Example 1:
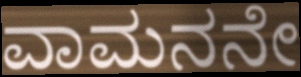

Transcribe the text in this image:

ವಾಮನನೇ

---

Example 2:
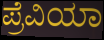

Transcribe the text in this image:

ಪ್ರೆವಿಯಾ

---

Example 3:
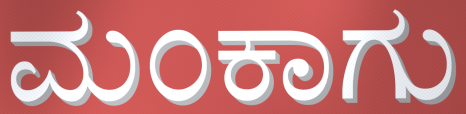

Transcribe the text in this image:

ಮಂಕಾಗು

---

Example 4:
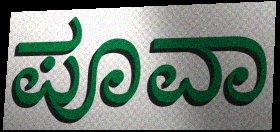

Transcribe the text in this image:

ಪೂವಾ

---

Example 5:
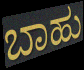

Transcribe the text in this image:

ಬಾಹು